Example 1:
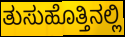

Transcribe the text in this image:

ತುಸುಹೊತ್ತಿನಲ್ಲಿ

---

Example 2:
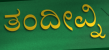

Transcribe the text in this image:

ತಂದೀವ್ನಿ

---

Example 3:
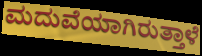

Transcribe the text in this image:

ಮದುವೆಯಾಗಿರುತ್ತಾಳೆ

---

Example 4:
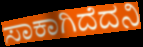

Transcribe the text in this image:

ಸಾಕಾಗಿದೆದನಿ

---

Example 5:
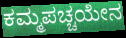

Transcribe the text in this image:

ಕಮ್ಮಪಚ್ಚಯೇನ